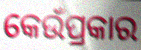
କେଉଁପ୍ରକାର